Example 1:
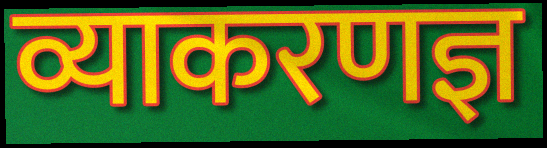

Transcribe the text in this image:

व्याकरणज्ञ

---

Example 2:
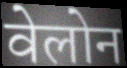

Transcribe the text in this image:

वेलोन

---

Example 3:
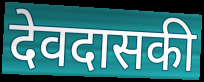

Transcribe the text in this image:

देवदासकी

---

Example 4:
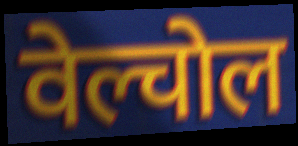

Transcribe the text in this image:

वेल्चोल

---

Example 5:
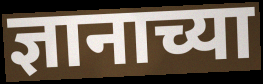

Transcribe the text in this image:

ज्ञानाच्या